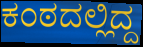
ಕಂಠದಲ್ಲಿದ್ದ